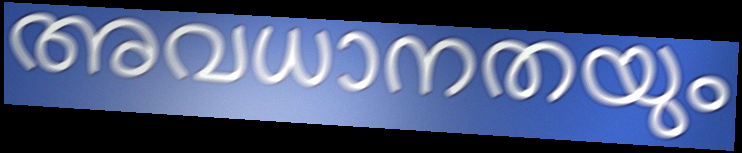
അവധാനതയും